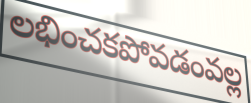
లభించకపోవడంవల్ల